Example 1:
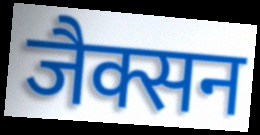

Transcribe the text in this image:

जैक्सन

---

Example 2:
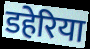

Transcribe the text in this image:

डहेरिया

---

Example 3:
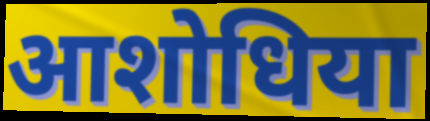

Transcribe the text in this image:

आशोधिया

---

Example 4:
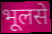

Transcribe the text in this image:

भूलसे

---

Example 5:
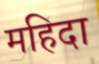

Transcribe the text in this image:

महिदा